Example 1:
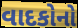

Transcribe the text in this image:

વાદકોનો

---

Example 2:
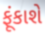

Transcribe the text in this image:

ફૂંકાશે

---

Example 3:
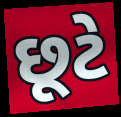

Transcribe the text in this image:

છૂટે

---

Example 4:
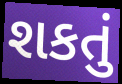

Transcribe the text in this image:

શકતું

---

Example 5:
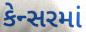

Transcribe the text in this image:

કેન્સરમાં